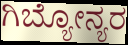
ಗಿಬ್ಯೋನ್ಯರ